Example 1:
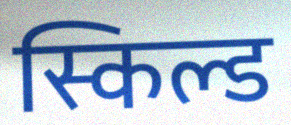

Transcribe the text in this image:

स्किल्ड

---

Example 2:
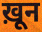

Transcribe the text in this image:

ख़ून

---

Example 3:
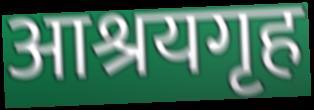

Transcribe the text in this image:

आश्रयगृह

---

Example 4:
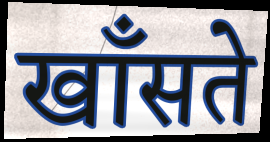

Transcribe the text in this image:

खाँसते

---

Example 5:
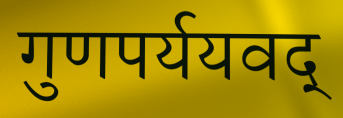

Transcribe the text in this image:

गुणपर्ययवद्